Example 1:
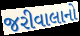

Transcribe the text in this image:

જરીવાલાનો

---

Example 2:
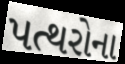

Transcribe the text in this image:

પત્થરોના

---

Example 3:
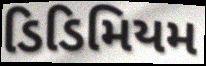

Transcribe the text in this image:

ડિડિમિયમ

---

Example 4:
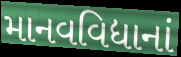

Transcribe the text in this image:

માનવવિદ્યાનાં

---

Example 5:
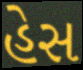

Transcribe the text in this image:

હેસ